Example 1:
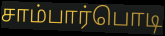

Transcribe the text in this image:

சாம்பார்பொடி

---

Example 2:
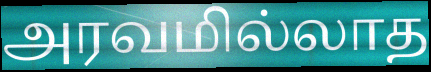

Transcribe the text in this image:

அரவமில்லாத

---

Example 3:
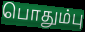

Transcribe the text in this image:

பொதும்பு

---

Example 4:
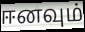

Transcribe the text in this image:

ஈனவும்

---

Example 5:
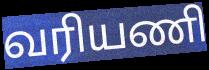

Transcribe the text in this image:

வரியணி